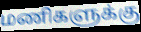
மணிகளுக்கு